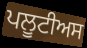
ਪਲੂਟੀਅਸ